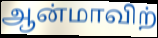
ஆன்மாவிற்